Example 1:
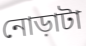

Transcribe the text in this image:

নোড়াটা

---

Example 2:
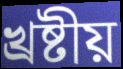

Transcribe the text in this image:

খ্রষ্টীয়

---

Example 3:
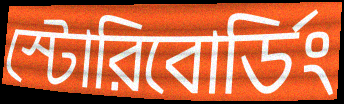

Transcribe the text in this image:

স্টোরিবোর্ডিং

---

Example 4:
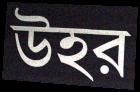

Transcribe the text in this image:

উহর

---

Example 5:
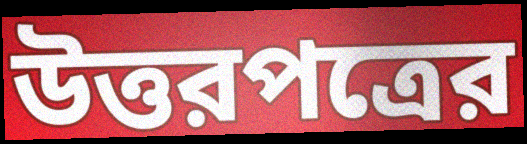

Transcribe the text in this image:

উত্তরপত্রের